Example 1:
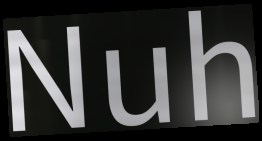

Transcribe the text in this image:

Nuh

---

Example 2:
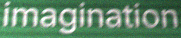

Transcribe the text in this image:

imagination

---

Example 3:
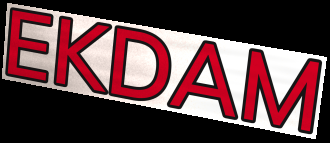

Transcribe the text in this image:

EKDAM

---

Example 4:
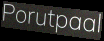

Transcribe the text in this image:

Porutpaal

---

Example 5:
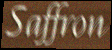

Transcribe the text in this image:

Saffron